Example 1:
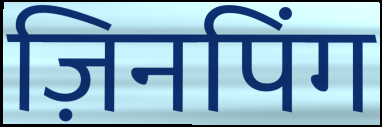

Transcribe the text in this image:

ज़िनपिंग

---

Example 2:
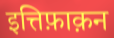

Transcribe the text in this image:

इत्तिफ़ाक़न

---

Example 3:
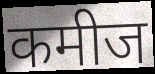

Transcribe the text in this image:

कमीज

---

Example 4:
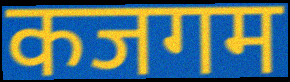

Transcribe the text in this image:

कजगम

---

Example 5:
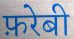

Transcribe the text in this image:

फ़रेबी